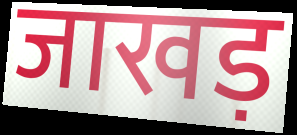
जाखड़